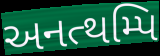
અનત્થમ્પિ